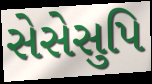
સેસેસુપિ